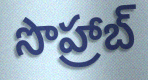
సొహ్రాబ్